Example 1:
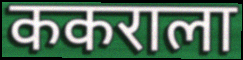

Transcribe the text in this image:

ककराला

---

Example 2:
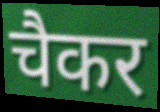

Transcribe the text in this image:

चैकर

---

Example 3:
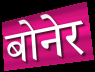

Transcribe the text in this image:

बोनेर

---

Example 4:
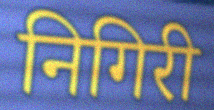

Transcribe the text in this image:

निगिरी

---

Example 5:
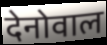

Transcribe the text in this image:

देनोवाल